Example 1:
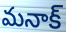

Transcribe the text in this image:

మనాక్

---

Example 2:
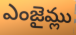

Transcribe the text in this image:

ఎంజైమ్లు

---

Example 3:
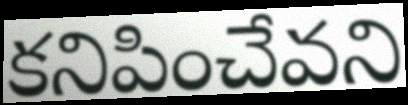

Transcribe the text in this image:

కనిపించేవని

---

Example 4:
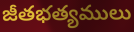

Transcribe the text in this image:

జీతభత్యములు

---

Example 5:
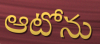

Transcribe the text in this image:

ఆటోను